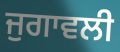
ਜੁਗਾਵਲੀ